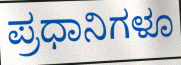
ಪ್ರಧಾನಿಗಳೂ